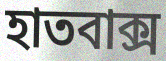
হাতবাক্স